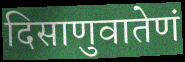
दिसाणुवातेणं